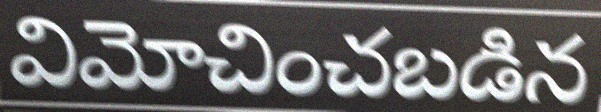
విమోచించబడిన